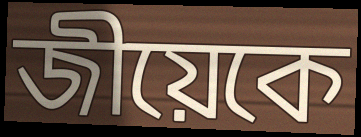
জীয়েকে